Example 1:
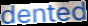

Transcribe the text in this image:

dented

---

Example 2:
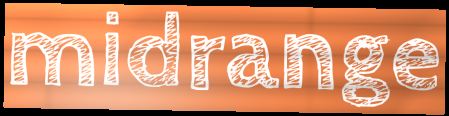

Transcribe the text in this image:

midrange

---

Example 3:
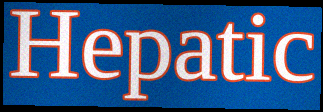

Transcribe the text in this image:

Hepatic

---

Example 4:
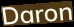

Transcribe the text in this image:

Daron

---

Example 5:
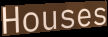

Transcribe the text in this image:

Houses